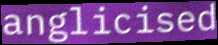
anglicised